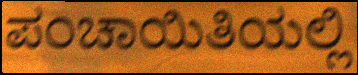
ಪಂಚಾಯಿತಿಯಲ್ಲಿ